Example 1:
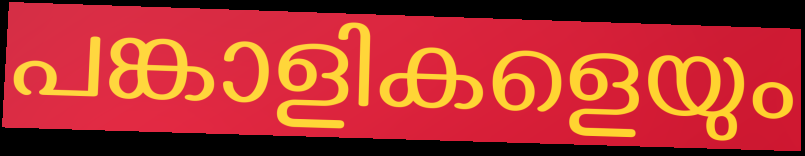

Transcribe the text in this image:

പങ്കാളികളെയും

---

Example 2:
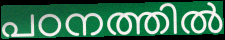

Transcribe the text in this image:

പഠനത്തിൽ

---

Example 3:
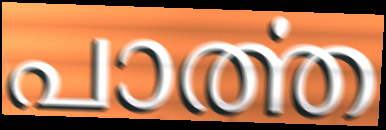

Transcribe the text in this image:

പാൎത്ത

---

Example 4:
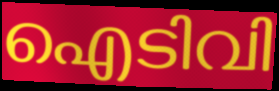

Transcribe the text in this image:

ഐടിവി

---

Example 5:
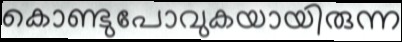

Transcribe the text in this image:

കൊണ്ടുപോവുകയായിരുന്ന